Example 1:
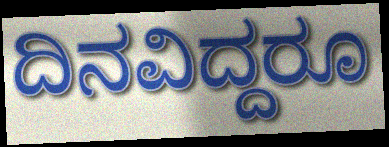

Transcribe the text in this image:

ದಿನವಿದ್ದರೂ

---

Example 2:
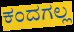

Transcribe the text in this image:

ಕಂದಗಲ್ಲ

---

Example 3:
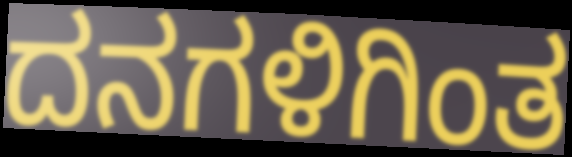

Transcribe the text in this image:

ದನಗಳಿಗಿಂತ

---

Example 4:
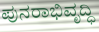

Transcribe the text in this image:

ಪುನರಾಭಿವೃದ್ಧಿ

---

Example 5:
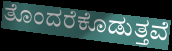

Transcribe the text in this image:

ತೊಂದರೆಕೊಡುತ್ತವೆ